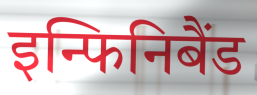
इन्फिनिबैंड